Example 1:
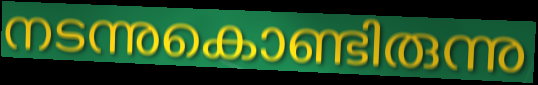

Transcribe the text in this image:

നടന്നുകൊണ്ടിരുന്നു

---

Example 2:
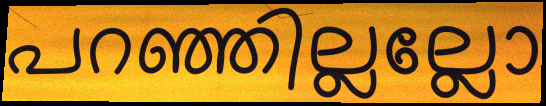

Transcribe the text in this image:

പറഞ്ഞില്ലല്ലോ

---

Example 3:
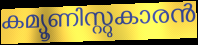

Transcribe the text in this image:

കമ്യൂണിസ്റ്റുകാരൻ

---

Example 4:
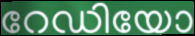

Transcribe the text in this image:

റേഡിയോ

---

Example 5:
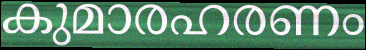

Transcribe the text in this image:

കുമാരഹരണം